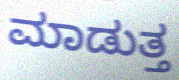
ಮಾಡುತ್ತ